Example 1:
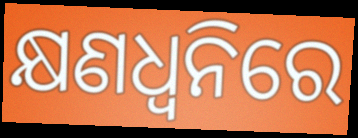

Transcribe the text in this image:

କ୍ଷଣଧ୍ୱନିରେ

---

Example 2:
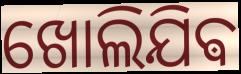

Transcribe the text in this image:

ଖୋଲିଯିଵ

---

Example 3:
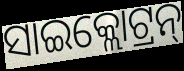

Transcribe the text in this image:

ସାଇକ୍ଲୋଟ୍ରନ୍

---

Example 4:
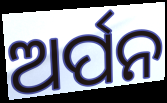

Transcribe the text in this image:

ଅର୍ପନ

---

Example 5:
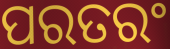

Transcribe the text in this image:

ପରତରଂ